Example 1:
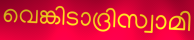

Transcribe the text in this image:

വെങ്കിടാദ്രിസ്വാമി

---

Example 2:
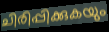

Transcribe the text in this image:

ചിരിപ്പിക്കുകയും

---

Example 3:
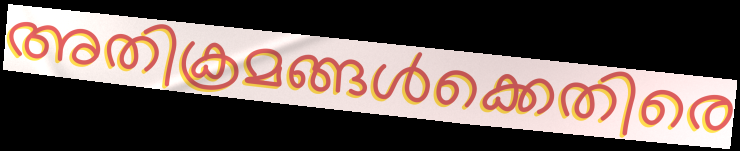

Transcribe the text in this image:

അതിക്രമങ്ങൾക്കെതിരെ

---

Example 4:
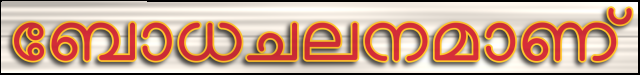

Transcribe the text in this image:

ബോധചലനമാണ്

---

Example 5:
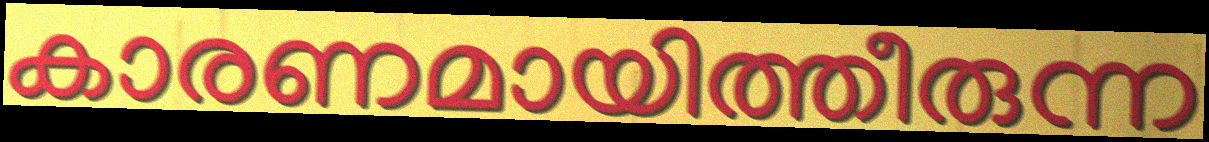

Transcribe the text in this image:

കാരണമായിത്തീരുന്ന